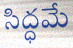
సిద్ధమే